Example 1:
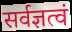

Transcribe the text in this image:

सर्वज्ञत्वं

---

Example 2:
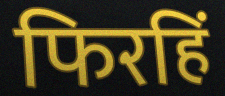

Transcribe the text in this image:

फिरहिं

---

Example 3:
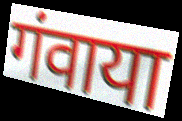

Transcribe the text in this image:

गंवाया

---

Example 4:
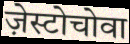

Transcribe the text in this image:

ज़ेस्टोचोवा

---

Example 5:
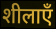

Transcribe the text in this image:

शीलाएँ